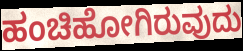
ಹಂಚಿಹೋಗಿರುವುದು